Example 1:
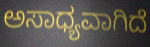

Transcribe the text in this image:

ಅಸಾಧ್ಯವಾಗಿದೆ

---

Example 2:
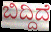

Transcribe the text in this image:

ಬಿದ್ದಿದೆ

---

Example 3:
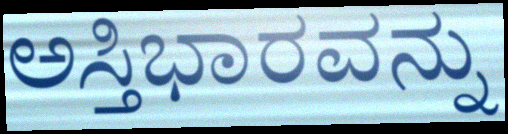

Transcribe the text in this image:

ಅಸ್ತಿಭಾರವನ್ನು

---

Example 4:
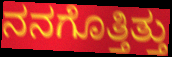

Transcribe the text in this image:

ನನಗೊತ್ತಿತ್ತು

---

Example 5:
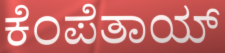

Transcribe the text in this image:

ಕೆಂಪೆತಾಯ್